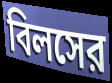
বিলসের